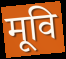
मूवि